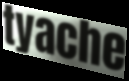
tyache